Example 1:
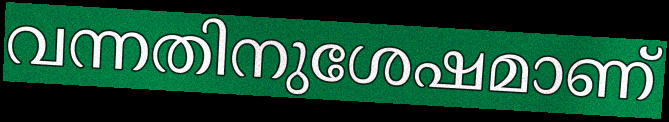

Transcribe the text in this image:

വന്നതിനുശേഷമാണ്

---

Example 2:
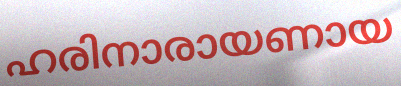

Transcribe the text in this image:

ഹരിനാരായണായ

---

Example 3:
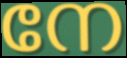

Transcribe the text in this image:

നേ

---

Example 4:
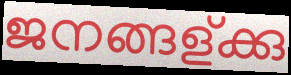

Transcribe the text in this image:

ജനങ്ങള്ക്കു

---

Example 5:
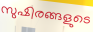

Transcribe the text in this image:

സുഷിരങ്ങളുടെ